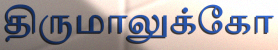
திருமாலுக்கோ